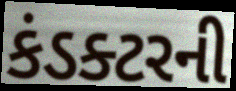
કંડક્ટરની